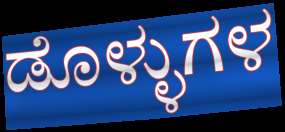
ಡೊಳ್ಳುಗಳ